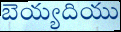
బెయ్యదియు